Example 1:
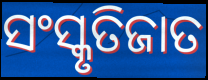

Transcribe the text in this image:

ସଂସ୍କୃତିଜାତ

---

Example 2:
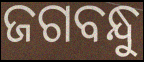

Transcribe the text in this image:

ଜଗବନ୍ଧୁ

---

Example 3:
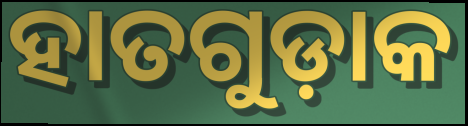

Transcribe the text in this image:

ହାତଗୁଡ଼ାକ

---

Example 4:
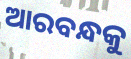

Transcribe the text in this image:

ଆରବନ୍ଧକୁ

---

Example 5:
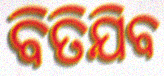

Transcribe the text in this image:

ବିତିଯିବ